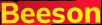
Beeson